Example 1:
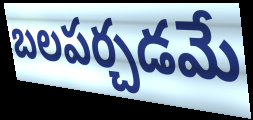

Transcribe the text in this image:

బలపర్చడమే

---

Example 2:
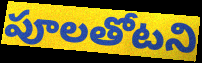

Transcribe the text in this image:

పూలతోటని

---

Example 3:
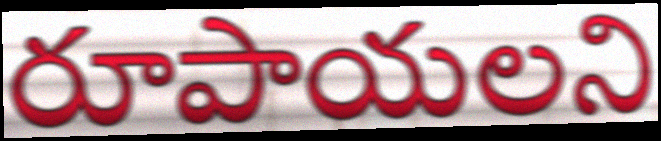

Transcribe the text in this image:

రూపాయలని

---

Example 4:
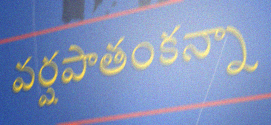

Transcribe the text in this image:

వర్షపాతంకన్నా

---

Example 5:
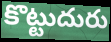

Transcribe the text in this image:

కొట్టుదురు